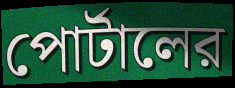
পোর্টালের